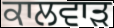
ਕਾਲਵਾੜ